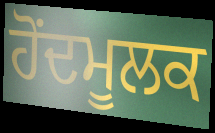
ਹੋਂਦਮੂਲਕ